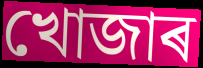
খোজাৰ